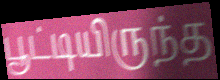
பூட்டியிருந்த